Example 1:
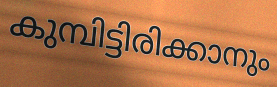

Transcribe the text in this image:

കുമ്പിട്ടിരിക്കാനും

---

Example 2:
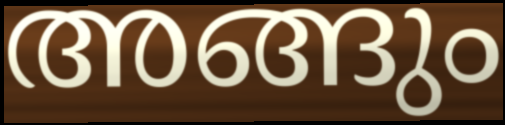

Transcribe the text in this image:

അങ്ങും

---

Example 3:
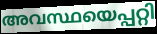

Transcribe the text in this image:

അവസ്ഥയെപ്പറ്റി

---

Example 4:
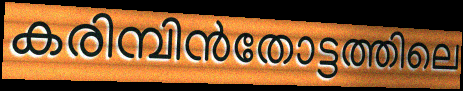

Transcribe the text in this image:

കരിമ്പിൻതോട്ടത്തിലെ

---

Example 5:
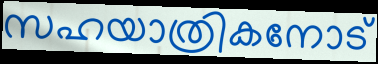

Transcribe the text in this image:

സഹയാത്രികനോട്